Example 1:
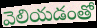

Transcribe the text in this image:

వెలియడంతో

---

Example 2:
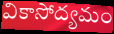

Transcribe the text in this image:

వికాసోద్యమం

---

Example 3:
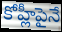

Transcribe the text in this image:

కోహ్లీపైనే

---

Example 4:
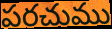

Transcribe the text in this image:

పరచుము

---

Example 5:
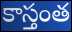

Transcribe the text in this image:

కాస్తంత